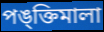
পঙ্ক্তিমালা